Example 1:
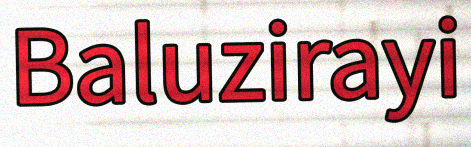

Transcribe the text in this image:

Baluzirayi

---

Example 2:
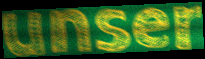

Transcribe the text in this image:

unser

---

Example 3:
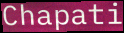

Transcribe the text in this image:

Chapati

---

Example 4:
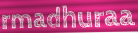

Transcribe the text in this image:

rmadhuraa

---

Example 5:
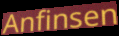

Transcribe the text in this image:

Anfinsen